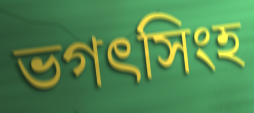
ভগৎসিংহ